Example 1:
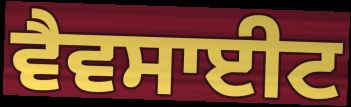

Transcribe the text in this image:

ਵੈਵਸਾਈਟ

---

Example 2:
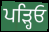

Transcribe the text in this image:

ਪੜ੍ਹਿਓ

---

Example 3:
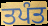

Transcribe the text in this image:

ਤਪੰਤ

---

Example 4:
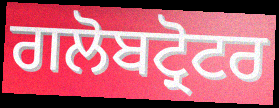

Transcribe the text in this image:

ਗਲੋਬਟ੍ਰੋਟਰ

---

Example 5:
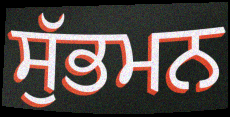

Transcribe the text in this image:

ਸੁੱਭਮਨ